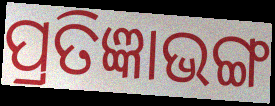
ପ୍ରତିଜ୍ଞାଭଙ୍ଗ